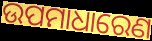
ଉପମାଧାରେଣ